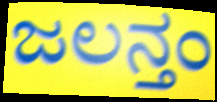
ಜಲನ್ತಂ